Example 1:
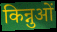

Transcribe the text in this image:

किन्नुओं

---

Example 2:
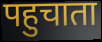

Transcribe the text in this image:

पहुचाता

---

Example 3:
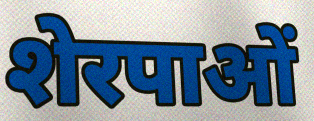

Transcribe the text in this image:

शेरपाओं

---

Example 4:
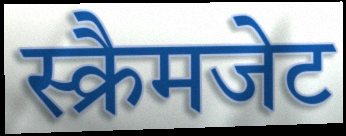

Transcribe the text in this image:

स्‍क्रैमजेट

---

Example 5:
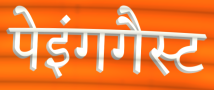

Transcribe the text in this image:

पेइंगगैस्ट